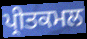
ਪ੍ਰੀਤਕਮਲ